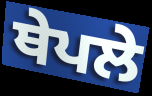
ਥੇਪਲੇ